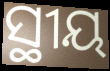
ସ୍ଥୀୟ